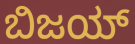
ಬಿಜಯ್